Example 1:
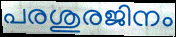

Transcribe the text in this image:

പരശുരജിനം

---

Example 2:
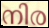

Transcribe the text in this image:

നിര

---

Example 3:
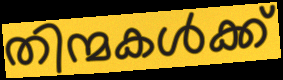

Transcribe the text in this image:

തിന്മകൾക്ക്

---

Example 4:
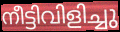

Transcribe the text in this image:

നീട്ടിവിളിച്ചു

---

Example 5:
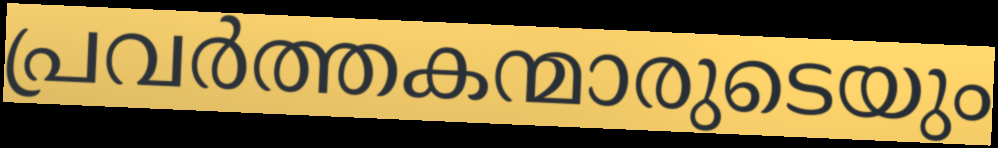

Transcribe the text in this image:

പ്രവർത്തകന്മാരുടെയും